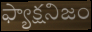
ఫ్యాక్షనిజం